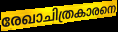
രേഖാചിത്രകാരനെ